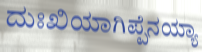
ದುಃಖಿಯಾಗಿಪ್ಪೆನಯ್ಯಾ